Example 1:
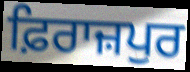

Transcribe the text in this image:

ਫ਼ਿਰਾਜ਼ਪੁਰ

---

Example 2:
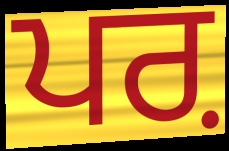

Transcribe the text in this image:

ਪਰ਼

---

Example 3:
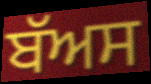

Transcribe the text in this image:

ਬੱਅਸ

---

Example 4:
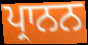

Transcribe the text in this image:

ਪ੍ਰਾਨਨ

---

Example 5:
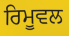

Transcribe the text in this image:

ਰਿਮੂਵਲ